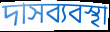
দাসব্যবস্থা